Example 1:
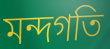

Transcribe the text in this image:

মন্দগতি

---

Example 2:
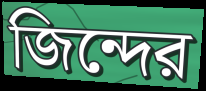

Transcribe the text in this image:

জিন্দের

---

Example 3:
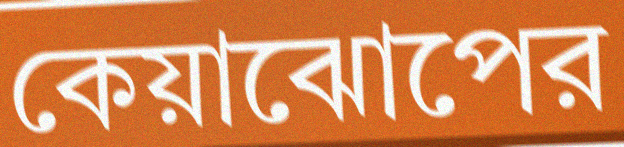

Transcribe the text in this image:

কেয়াঝোপের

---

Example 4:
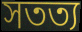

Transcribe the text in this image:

সতত্য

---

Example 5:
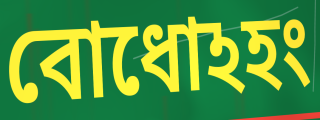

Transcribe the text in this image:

বোধোঽহং